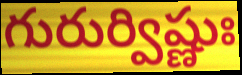
గురుర్విష్ణుః